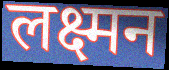
लक्ष्मन